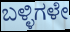
ಬಳ್ಳಿಗಳೇ